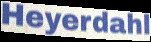
Heyerdahl